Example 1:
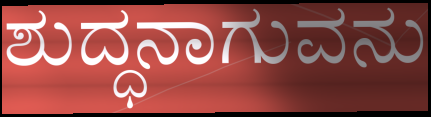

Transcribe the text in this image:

ಶುದ್ಧನಾಗುವನು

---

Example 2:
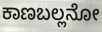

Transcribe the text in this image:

ಕಾಣಬಲ್ಲನೋ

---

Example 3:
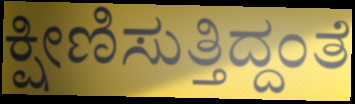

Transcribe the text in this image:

ಕ್ಷೀಣಿಸುತ್ತಿದ್ದಂತೆ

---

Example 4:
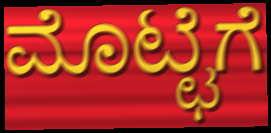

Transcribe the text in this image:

ಮೊಟ್ಟೆಗೆ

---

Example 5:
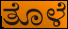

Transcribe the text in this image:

ತೊಳೆ